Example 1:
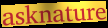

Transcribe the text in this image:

asknature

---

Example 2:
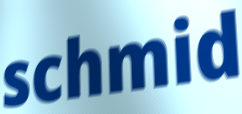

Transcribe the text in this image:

schmid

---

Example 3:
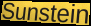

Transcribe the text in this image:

Sunstein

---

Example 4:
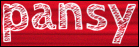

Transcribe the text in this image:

pansy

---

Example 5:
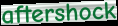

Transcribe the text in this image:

aftershock